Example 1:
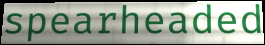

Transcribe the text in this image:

spearheaded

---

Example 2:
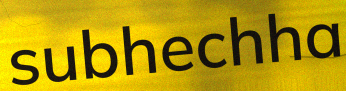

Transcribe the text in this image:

subhechha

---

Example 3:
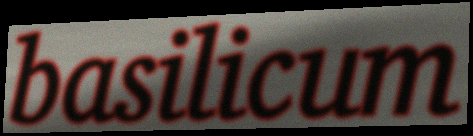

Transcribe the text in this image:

basilicum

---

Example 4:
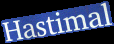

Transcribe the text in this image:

Hastimal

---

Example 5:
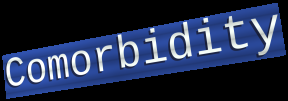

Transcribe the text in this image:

Comorbidity